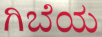
ಗಿಬೆಯ